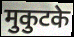
मुकुटके